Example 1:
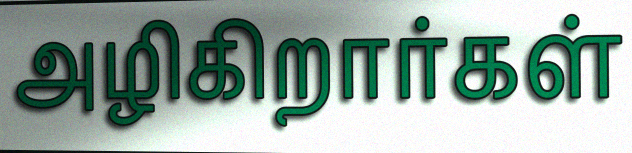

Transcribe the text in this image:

அழிகிறார்கள்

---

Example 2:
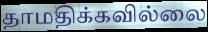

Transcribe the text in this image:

தாமதிக்கவில்லை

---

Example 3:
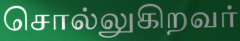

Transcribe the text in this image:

சொல்லுகிறவர்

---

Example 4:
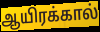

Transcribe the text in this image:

ஆயிரக்கால்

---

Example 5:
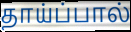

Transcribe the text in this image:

தாய்ப்பால்